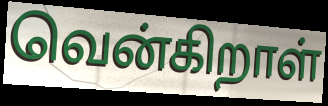
வென்கிறாள்